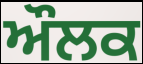
ਔਲਕ